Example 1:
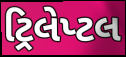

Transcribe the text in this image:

ટ્રિલેપ્ટલ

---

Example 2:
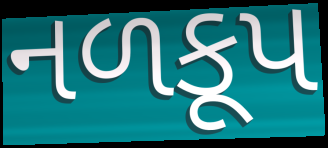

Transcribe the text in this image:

નળકૂપ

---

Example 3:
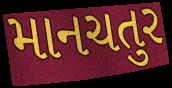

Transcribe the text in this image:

માનચતુર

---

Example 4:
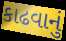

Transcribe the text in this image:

કાઢવાનું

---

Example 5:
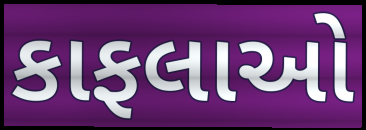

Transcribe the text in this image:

કાફલાઓ